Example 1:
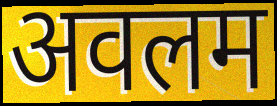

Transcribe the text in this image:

अवलम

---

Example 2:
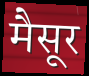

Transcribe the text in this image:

मैसूर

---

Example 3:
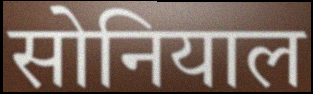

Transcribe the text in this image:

सोनियाल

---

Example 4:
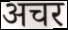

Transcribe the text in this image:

अचर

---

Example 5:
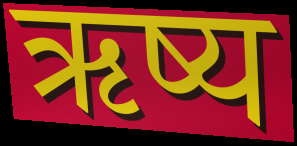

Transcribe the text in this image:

ऋष्य